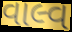
વાલ્વ